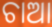
ଚାଆ